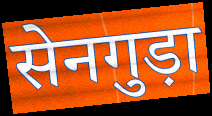
सेनगुड़ा